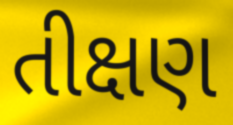
તીક્ષણ